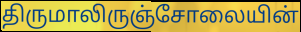
திருமாலிருஞ்சோலையின்